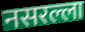
नसरल्ला